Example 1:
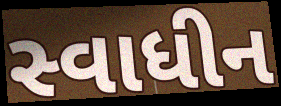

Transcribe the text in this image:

સ્વાધીન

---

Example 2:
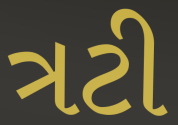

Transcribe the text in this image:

ત્રટી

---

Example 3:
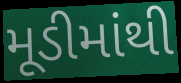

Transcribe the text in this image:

મૂડીમાંથી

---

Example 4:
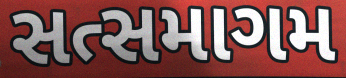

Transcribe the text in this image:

સત્સમાગમ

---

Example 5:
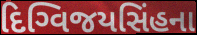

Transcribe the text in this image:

દિગ્વિજયસિંહના